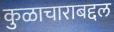
कुळाचाराबद्दल